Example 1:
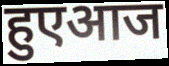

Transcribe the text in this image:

हुएआज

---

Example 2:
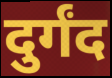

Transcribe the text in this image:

दुर्गंद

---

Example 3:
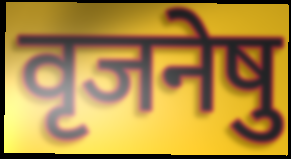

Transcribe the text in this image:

वृजनेषु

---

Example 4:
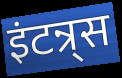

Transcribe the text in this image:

इंटन्र्स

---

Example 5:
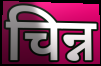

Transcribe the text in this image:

चिन्न